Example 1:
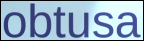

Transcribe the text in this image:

obtusa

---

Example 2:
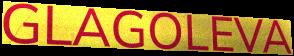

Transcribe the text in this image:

GLAGOLEVA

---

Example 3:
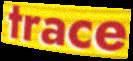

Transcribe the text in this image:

trace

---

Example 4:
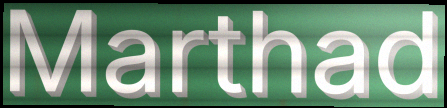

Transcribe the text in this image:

Marthad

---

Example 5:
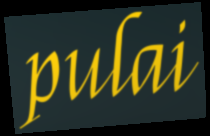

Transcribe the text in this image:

pulai